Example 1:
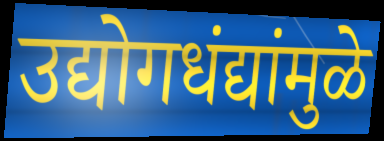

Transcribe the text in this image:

उद्योगधंद्यांमुळे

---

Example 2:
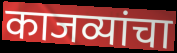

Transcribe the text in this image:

काजव्यांचा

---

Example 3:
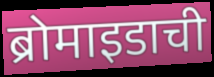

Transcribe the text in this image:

ब्रोमाइडाची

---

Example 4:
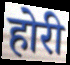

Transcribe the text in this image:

होरी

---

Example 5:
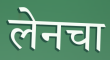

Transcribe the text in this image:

लेनचा